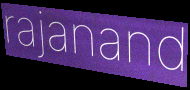
rajanand